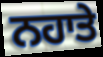
ਨਹਾਤੇ